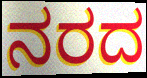
ನರದ